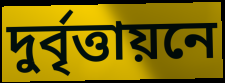
দুর্বৃত্তায়নে